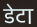
डेटा